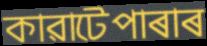
কাৱাটেপাৰাৰ